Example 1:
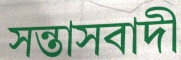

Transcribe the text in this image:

সন্তাসবাদী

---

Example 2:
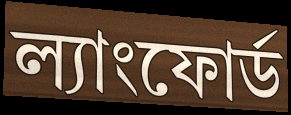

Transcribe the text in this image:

ল্যাংফোর্ড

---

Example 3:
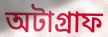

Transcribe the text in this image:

অটাগ্রাফ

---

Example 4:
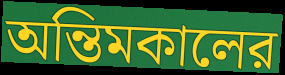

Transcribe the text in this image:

অন্তিমকালের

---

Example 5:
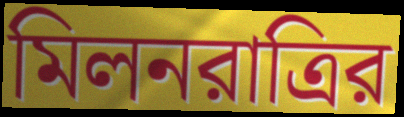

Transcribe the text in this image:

মিলনরাত্রির